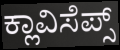
ಕ್ಲಾವಿಸೆಪ್ಸ್